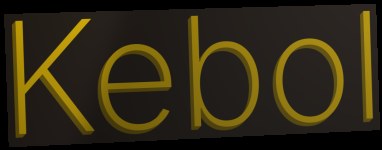
Kebol